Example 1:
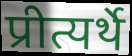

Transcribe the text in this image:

प्रीत्यर्थे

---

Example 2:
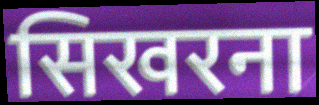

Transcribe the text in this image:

सिखरना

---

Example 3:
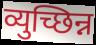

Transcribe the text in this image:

व्युच्छिन्न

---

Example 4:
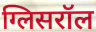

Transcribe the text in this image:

ग्लिसरॉल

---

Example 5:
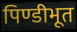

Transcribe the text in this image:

पिण्डीभूत